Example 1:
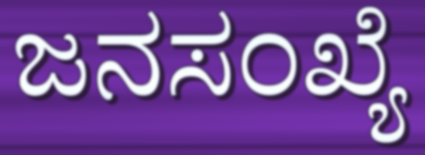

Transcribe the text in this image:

ಜನಸಂಖ್ಯೆ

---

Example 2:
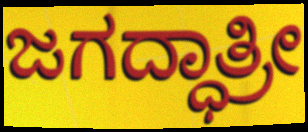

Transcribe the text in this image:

ಜಗದ್ಧಾತ್ರೀ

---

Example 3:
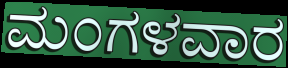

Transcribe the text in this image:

ಮಂಗಳವಾರ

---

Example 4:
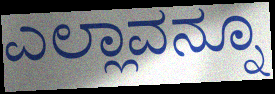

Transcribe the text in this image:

ಎಲ್ಲಾವನ್ನೂ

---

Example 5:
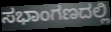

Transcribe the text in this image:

ಸಭಾಂಗಣದಲ್ಲಿ